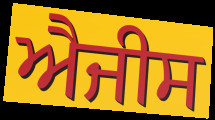
ਐਜੀਸ